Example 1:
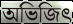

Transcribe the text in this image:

অভিজিৎ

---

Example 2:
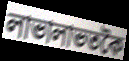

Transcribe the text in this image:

লাভালাভতকৈ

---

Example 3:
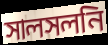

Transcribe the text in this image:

সালসলনি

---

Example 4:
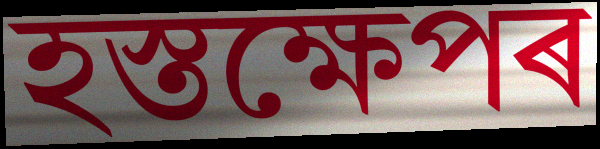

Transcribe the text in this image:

হস্তক্ষেপৰ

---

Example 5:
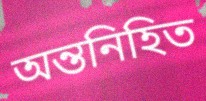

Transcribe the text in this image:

অন্তনিহিত